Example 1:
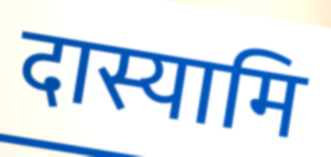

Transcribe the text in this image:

दास्यामि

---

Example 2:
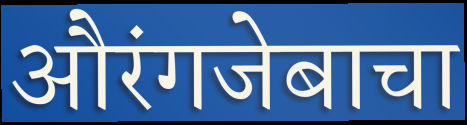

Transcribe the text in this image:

औरंगजेबाचा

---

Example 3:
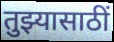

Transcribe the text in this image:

तुझ्यासाठीं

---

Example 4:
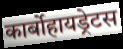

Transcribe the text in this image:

कार्बोहायड्रेटस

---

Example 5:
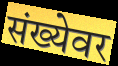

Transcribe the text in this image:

संख्येवर